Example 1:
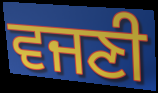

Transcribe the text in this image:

ਵਜਣੀ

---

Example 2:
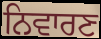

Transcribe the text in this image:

ਨਿਵਾਰਣ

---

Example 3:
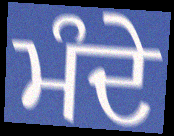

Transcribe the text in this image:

ਮੰਦੇ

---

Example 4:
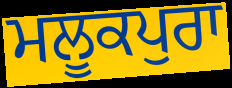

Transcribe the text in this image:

ਮਲੂਕਪੁਰਾ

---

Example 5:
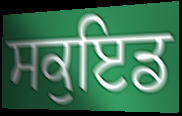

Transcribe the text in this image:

ਸਕੁਇਡ